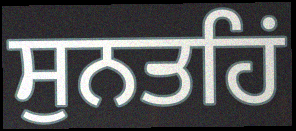
ਸੁਨਤਹਿਂ